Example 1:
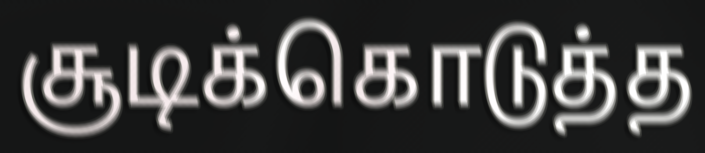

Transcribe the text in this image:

சூடிக்கொடுத்த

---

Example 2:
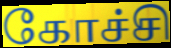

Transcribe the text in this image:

கோச்சி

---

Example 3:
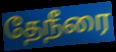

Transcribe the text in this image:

தேநீரை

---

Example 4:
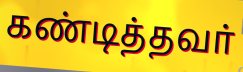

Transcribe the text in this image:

கண்டித்தவர்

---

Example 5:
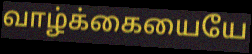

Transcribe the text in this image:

வாழ்க்கையையே